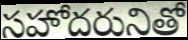
సహోదరునితో